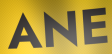
ANE